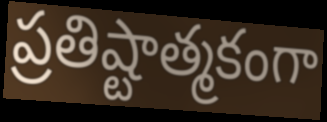
ప్రతిష్టాత్మకంగా